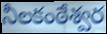
నీలకంఠేశ్వర